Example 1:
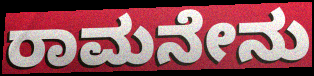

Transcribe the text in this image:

ರಾಮನೇನು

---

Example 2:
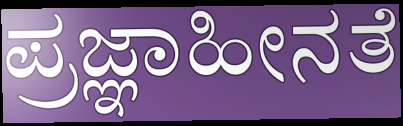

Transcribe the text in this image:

ಪ್ರಜ್ಞಾಹೀನತೆ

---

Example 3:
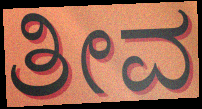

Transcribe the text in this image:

ತೀವ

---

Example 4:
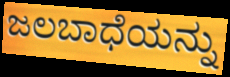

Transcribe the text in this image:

ಜಲಬಾಧೆಯನ್ನು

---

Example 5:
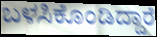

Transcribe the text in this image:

ಬಳಸಿಕೊಂಡಿದ್ದಾರೆ